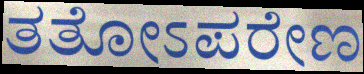
ತತೋಽಪರೇಣ